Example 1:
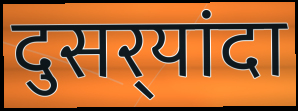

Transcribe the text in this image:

दुसर्‍यांदा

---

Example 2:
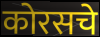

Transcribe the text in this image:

कोरसचे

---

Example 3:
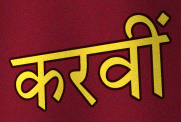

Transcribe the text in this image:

करवीं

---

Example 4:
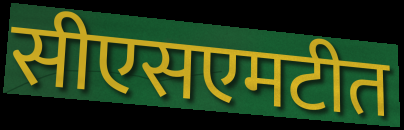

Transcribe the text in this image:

सीएसएमटीत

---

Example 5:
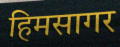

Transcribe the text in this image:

हिमसागर